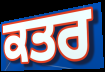
ਕਤਰ